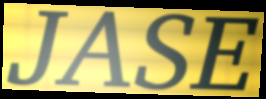
JASE